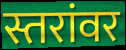
स्तरांवर